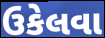
ઉકેલવા